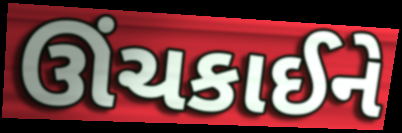
ઊંચકાઈને